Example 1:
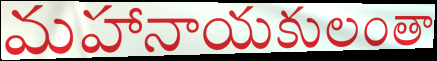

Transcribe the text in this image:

మహానాయకులంతా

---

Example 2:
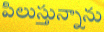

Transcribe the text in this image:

పిలుస్తున్నాను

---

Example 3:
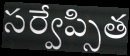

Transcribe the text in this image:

సర్వేప్సిత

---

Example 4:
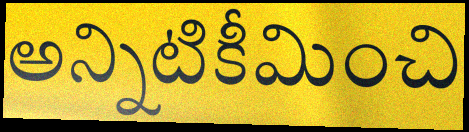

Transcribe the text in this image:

అన్నిటికీమించి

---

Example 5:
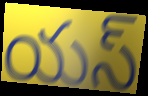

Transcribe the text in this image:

యస్